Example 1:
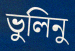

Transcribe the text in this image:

ভুলিনু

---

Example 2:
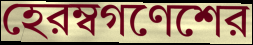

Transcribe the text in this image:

হেরম্বগণেশের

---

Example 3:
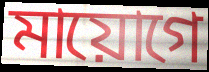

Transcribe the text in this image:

মায়োগে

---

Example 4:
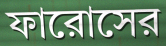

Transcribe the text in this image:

ফারোসের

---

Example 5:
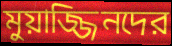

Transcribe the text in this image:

মুয়াজ্জিনদের